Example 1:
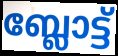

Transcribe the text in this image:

ബ്ലോട്ട്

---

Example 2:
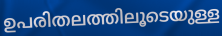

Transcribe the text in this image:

ഉപരിതലത്തിലൂടെയുള്ള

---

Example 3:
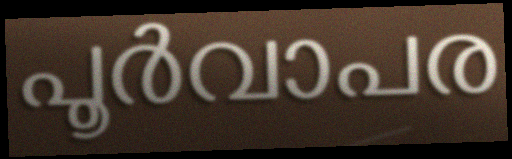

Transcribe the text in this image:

പൂർവാപര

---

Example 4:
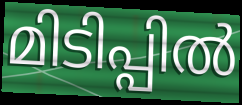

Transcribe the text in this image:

മിടിപ്പിൽ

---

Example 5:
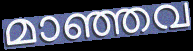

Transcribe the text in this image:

മാഞ്ഞവ